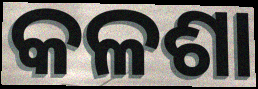
କଳଶା